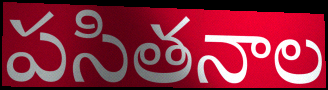
పసితనాల